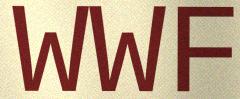
WWF